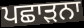
ਪਛਾੜਨਾ